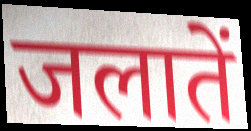
जलातें